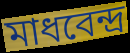
মাধবেন্দ্র